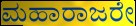
ಮಹಾರಾಜರೇ